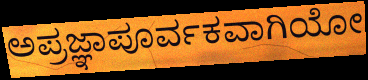
ಅಪ್ರಜ್ಞಾಪೂರ್ವಕವಾಗಿಯೋ